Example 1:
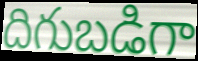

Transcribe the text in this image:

దిగుబడిగా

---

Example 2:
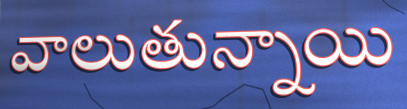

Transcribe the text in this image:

వాలుతున్నాయి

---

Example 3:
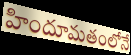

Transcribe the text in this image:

హిందూమతంలోనే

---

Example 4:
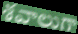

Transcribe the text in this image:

శవాలుగా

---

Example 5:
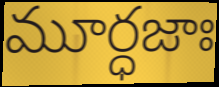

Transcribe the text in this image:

మూర్ధజాః